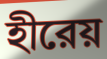
হীরেয়